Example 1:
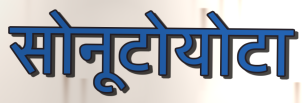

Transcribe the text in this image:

सोनूटोयोटा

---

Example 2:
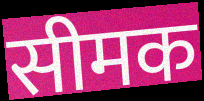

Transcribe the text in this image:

सीमक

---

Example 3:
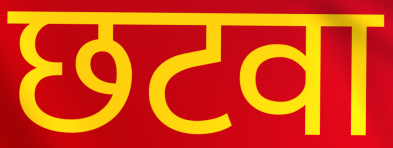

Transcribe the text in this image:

छटवा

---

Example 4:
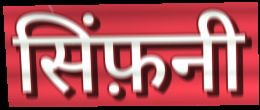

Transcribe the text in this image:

सिंफ़नी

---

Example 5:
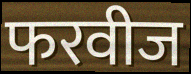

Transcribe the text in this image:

फरवीज